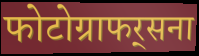
फोटोग्राफर्सना